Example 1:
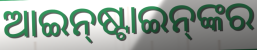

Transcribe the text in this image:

ଆଇନ୍‌ଷ୍ଟାଇନ୍‌ଙ୍କର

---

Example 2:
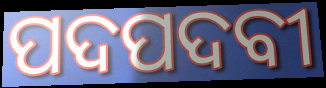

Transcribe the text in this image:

ପଦପଦବୀ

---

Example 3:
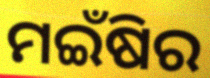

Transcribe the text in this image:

ମଇଁଷିର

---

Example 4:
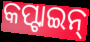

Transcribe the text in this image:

କପ୍ଟାଇନ୍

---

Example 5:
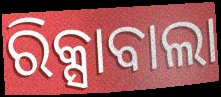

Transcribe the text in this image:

ରିକ୍ସାବାଲା